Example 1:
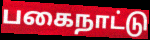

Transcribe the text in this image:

பகைநாட்டு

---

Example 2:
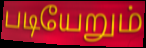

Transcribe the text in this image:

படியேறும்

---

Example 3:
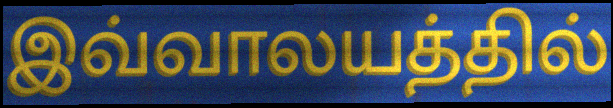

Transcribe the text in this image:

இவ்வாலயத்தில்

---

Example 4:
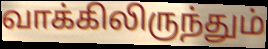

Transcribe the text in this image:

வாக்கிலிருந்தும்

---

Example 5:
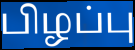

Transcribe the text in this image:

பிழப்பு